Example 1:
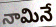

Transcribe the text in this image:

నామినే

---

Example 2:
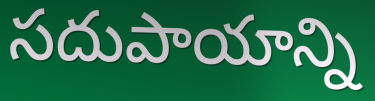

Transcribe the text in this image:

సదుపాయాన్ని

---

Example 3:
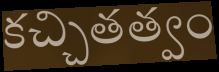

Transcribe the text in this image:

కచ్చితత్వం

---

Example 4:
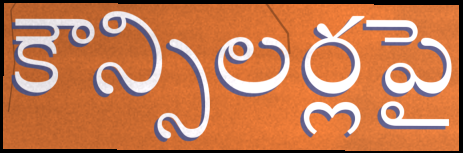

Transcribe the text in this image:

కౌన్సిలర్లపై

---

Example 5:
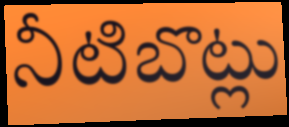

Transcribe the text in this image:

నీటిబొట్లు